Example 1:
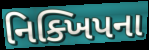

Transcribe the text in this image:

નિક્ખિપના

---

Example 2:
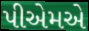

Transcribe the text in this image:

પીએમએ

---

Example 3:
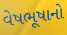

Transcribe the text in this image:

વેષભૂષાનો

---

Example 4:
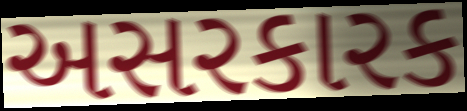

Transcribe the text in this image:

અસરકારક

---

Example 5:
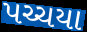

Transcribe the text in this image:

પચ્ચયા